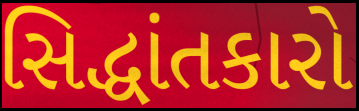
સિદ્ધાંતકારો